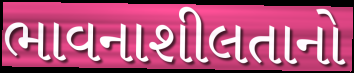
ભાવનાશીલતાનો